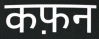
कफ़न